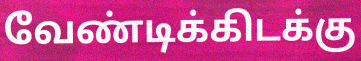
வேண்டிக்கிடக்கு